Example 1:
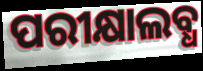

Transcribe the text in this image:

ପରୀକ୍ଷାଲବ୍ଧ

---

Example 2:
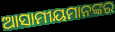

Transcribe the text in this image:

ଆସାମୀୟମାନଙ୍କର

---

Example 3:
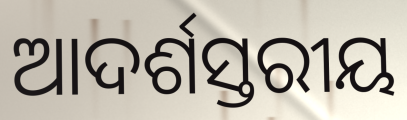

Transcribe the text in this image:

ଆଦର୍ଶସ୍ତରୀୟ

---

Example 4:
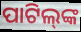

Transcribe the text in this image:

ପାଟିଲ୍‌ଙ୍କ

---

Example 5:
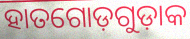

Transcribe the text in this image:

ହାତଗୋଡ଼ଗୁଡ଼ାକ